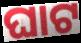
ଘାଟ